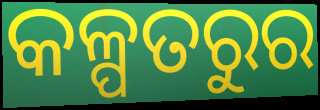
କଳ୍ପତରୁର